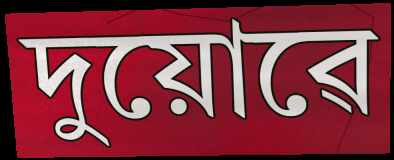
দুয়োৱে